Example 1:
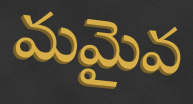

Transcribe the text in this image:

మమైవ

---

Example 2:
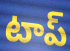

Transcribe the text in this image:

టాప్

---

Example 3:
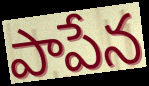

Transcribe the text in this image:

పాపేన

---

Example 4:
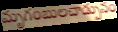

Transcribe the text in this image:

మృగంబులచాడ్పునం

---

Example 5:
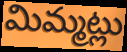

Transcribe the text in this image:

మిమ్మట్లు